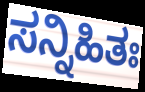
ಸನ್ನಿಹಿತಃ